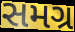
સમગ્ર